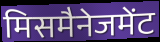
मिसमैनेजमेंट